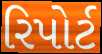
રિપોર્ટ